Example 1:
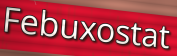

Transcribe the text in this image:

Febuxostat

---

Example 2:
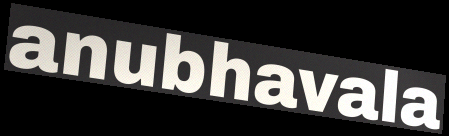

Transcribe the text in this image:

anubhavala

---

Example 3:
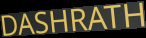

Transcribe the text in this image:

DASHRATH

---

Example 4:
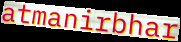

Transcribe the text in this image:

atmanirbhar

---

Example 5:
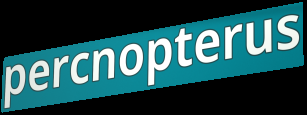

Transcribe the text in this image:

percnopterus